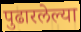
पुढारलेल्या